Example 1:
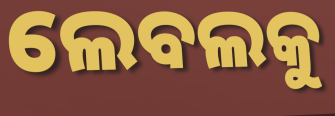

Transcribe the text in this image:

ଲେବଲକୁ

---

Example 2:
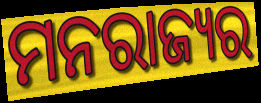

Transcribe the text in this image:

ମନରାଜ୍ୟର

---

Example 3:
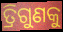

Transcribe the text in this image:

ତ୍ରିଗୁଣକୁ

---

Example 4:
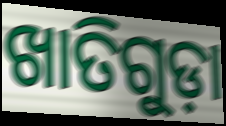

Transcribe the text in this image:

ଖାତିଗୁଡ଼ା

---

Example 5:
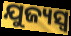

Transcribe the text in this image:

ଯୁଜ୍ୟସ୍ୱ